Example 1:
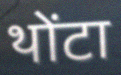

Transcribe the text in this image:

थोंटा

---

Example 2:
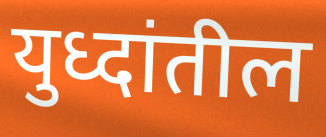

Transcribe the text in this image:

युध्दांतील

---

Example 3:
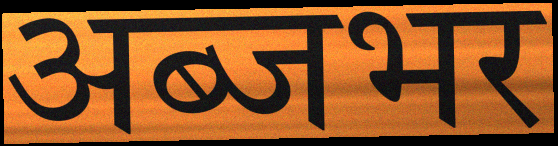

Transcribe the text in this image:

अब्जभर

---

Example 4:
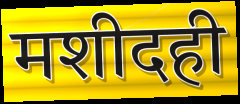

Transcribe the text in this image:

मशीदही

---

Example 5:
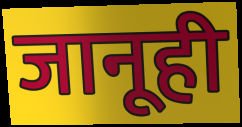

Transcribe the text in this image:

जानूही